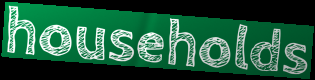
households